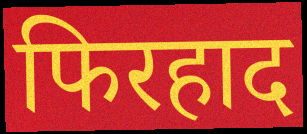
फिरहाद